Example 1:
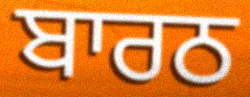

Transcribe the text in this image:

ਬਾਰਠ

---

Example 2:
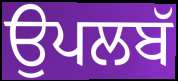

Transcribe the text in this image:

ਉਪਲਬੱ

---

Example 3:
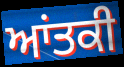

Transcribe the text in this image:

ਆਂਤਕੀ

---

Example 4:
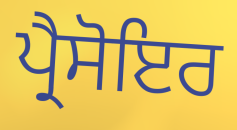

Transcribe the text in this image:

ਪ੍ਰੈਸੋਇਰ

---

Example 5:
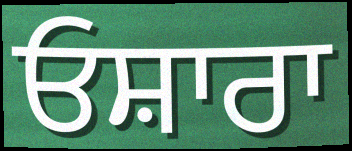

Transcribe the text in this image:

ਓਸ਼ਾਰਾ